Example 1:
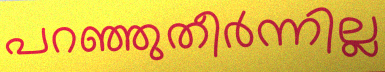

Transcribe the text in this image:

പറഞ്ഞുതീർന്നില്ല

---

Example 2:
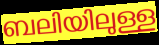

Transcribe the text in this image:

ബലിയിലുള്ള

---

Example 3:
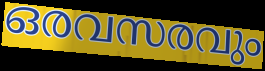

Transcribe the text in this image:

ഒരവസരവും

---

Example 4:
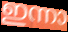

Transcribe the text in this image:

ഇന്നാ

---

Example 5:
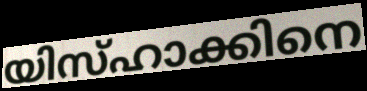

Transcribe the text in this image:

യിസ്ഹാക്കിനെ